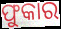
ଫୁକାର